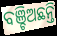
ବଞ୍ଚିଅଛନ୍ତି